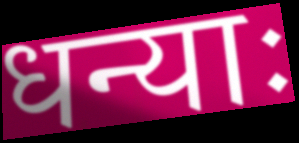
धन्याः